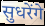
सुधरेंगे